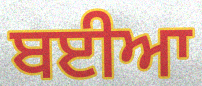
ਬਈਆ